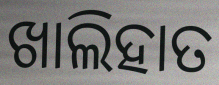
ଖାଲିହାତ